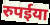
रुपईया